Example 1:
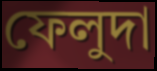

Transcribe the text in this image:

ফেলুদা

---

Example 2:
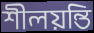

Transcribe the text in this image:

শীলয়ন্তি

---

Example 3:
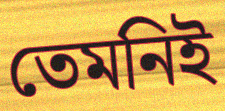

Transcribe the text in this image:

তেমনিই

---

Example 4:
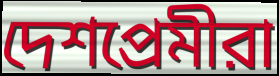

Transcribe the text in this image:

দেশপ্রেমীরা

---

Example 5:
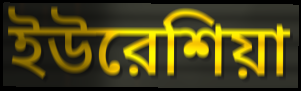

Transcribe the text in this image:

ইউরেশিয়া